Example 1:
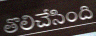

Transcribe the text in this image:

తొలిచేసింది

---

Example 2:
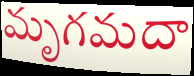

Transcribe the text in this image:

మృగమదా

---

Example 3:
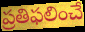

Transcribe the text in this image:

ప్రతిఫలించే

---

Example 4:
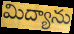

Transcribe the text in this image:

మిద్యాను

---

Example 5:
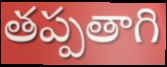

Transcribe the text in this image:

తప్పతాగి